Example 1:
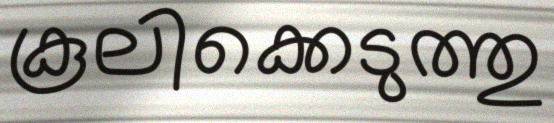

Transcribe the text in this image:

കൂലിക്കെടുത്തു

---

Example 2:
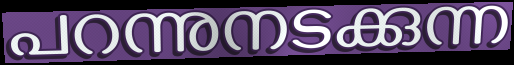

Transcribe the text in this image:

പറന്നുനടക്കുന്ന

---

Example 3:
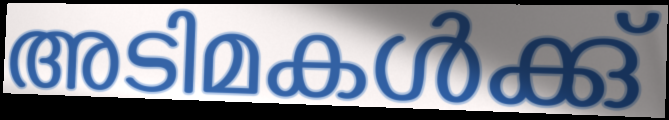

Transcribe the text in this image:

അടിമകൾക്കു്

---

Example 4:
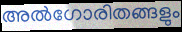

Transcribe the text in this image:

അൽഗോരിതങ്ങളും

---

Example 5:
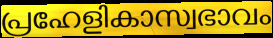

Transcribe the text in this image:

പ്രഹേളികാസ്വഭാവം